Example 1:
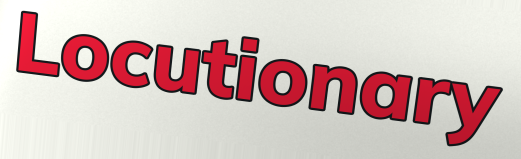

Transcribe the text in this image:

Locutionary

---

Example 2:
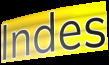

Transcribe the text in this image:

Indes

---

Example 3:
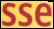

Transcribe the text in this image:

sse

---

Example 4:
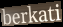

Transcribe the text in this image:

berkati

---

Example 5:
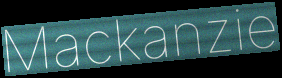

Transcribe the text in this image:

Mackanzie